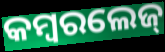
କମ୍ବରଲେଜ୍